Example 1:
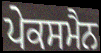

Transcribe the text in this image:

ਪੇਕਸਮੈਨ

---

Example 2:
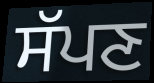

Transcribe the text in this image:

ਸੱਪਣ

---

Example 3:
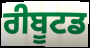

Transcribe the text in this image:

ਰੀਬੂਟਡ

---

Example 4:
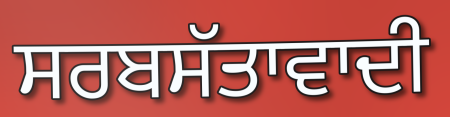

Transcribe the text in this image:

ਸਰਬਸੱਤਾਵਾਦੀ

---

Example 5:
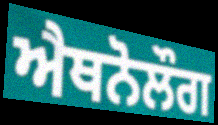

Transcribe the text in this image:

ਐਥਨੋਲੌਗ